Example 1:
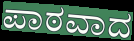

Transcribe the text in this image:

ಪಾಠವಾದ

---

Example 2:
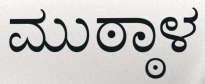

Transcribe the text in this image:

ಮುಠ್ಠಾಳ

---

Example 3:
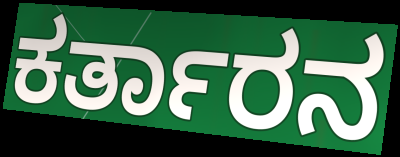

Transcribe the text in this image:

ಕರ್ತಾರನ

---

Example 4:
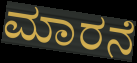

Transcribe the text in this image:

ಮಾರನೆ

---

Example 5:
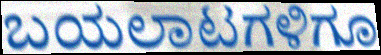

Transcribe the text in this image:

ಬಯಲಾಟಗಳಿಗೂ